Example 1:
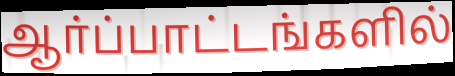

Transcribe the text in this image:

ஆர்ப்பாட்டங்களில்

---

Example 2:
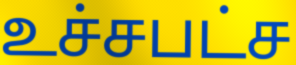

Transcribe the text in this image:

உச்சபட்ச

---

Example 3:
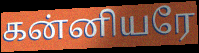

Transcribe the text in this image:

கன்னியரே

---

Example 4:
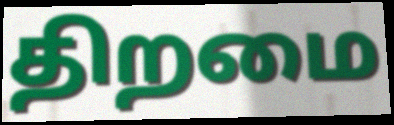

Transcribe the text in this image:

திறமை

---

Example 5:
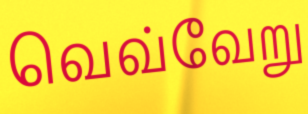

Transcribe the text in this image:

வெவ்வேறு